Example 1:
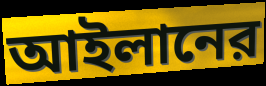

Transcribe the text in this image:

আইলানের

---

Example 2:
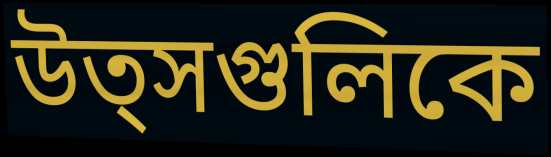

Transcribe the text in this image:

উত্সগুলিকে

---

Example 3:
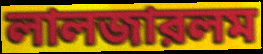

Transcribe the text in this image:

লালজারলম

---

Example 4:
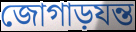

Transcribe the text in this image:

জোগাড়যন্ত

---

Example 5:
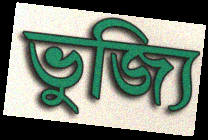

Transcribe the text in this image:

ভুজ্যি